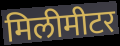
मिलीमीटर